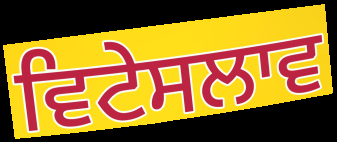
ਵਿਟੇਸਲਾਵ